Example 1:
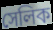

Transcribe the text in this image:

সেলিক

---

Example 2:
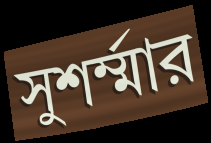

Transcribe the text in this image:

সুশর্ম্মার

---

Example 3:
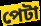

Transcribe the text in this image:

পেটা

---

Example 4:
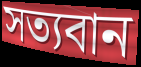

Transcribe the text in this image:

সত্যবান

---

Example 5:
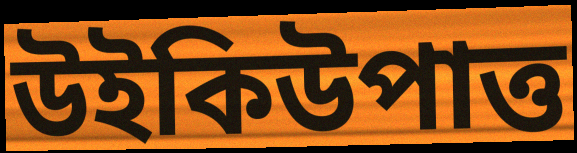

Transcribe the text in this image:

উইকিউপাত্ত